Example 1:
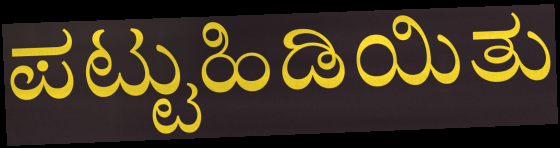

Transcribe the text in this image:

ಪಟ್ಟುಹಿಡಿಯಿತು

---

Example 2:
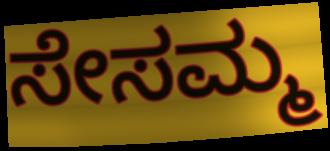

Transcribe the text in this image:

ಸೇಸಮ್ಮ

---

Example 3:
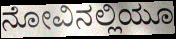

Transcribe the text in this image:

ನೋವಿನಲ್ಲಿಯೂ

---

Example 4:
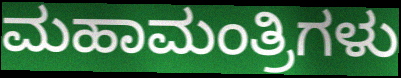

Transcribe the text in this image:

ಮಹಾಮಂತ್ರಿಗಳು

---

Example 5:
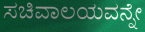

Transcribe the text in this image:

ಸಚಿವಾಲಯವನ್ನೇ